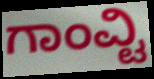
ಗಾಂವ್ಟಿ